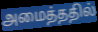
அமைத்ததில்